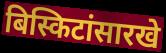
बिस्किटांसारखे